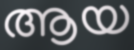
ആയ